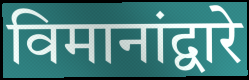
विमानांद्वारे